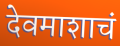
देवमाशाचं